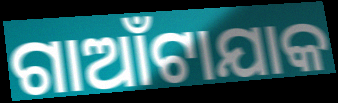
ଗାଆଁଟାଯାକ